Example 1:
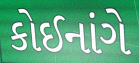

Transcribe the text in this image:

કોઈનાંગે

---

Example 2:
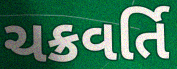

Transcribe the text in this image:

ચક્રવર્તિ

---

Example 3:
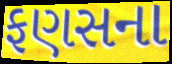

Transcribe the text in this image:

ફણસના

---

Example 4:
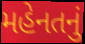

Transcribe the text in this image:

મહેનતનું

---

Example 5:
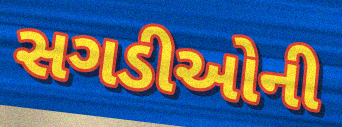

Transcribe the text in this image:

સગડીઓની